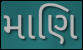
માણિ